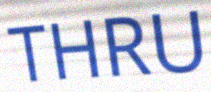
THRU